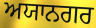
ਅਯਾਨਗਰ